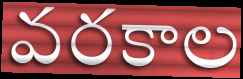
వరకాల